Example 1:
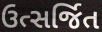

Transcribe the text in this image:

ઉત્સર્જિત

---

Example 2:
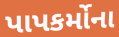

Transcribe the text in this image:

પાપકર્મોના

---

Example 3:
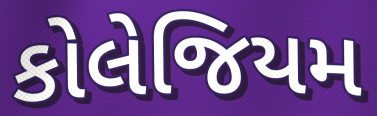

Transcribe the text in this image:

કોલેજિયમ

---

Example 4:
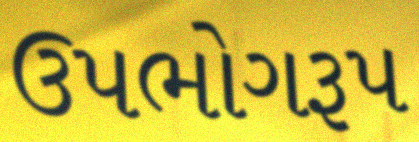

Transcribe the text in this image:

ઉપભોગરૂપ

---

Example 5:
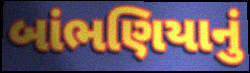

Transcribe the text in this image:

બાંભણિયાનું